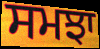
ਸਮਝਾ